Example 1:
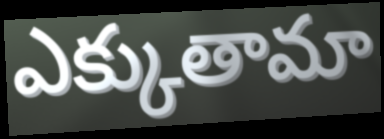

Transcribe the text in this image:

ఎక్కుతామా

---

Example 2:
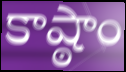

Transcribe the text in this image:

కాష్ఠాం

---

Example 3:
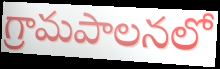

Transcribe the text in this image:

గ్రామపాలనలో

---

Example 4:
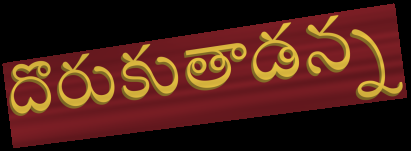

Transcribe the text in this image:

దొరుకుతాడన్న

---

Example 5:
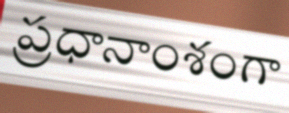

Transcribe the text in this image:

ప్రధానాంశంగా